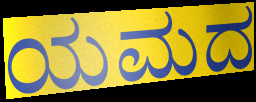
ಯಮದ